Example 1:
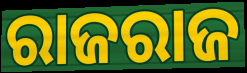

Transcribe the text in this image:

ରାଜରାଜ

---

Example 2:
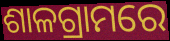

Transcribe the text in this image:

ଶାଳଗ୍ରାମରେ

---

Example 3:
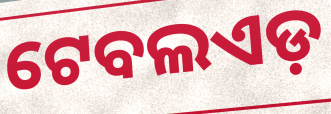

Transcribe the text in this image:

ଟେବଲଏଡ଼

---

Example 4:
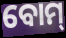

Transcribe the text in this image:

ବୋମ୍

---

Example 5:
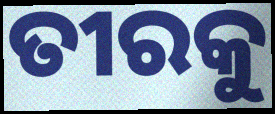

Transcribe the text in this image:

ତୀରକୁ